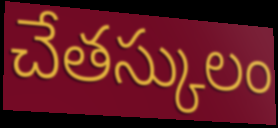
చేతస్కులం